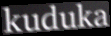
kuduka